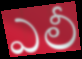
ఎలీ